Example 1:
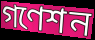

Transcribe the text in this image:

গণেশন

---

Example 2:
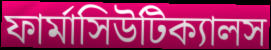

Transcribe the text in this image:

ফার্মাসিউটিক্যালস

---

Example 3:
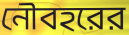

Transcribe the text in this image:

নৌবহরের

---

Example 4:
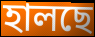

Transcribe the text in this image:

হালছে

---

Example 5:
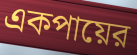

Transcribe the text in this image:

একপায়ের